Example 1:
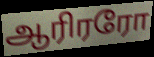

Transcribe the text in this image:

ஆரிரரோ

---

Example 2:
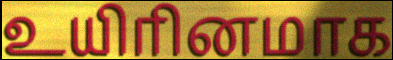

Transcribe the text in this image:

உயிரினமாக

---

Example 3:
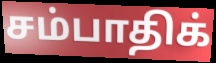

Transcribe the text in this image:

சம்பாதிக்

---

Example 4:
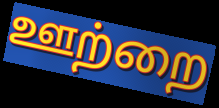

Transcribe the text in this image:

ஊற்றை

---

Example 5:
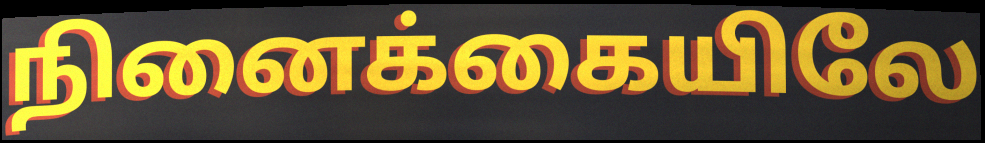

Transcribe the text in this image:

நினைக்கையிலே